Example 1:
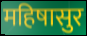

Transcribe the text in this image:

महिषासुर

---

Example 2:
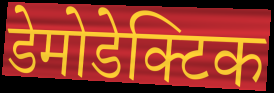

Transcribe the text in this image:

डेमोडेक्टिक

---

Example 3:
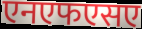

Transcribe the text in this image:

एनएफएसए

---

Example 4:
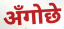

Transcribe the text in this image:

अँगोछे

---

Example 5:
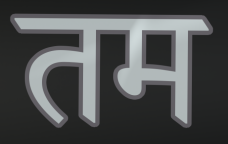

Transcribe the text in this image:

तम